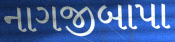
નાગજીબાપા